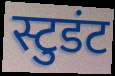
स्टुडंट